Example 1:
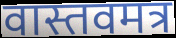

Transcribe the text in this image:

वास्तवमत्र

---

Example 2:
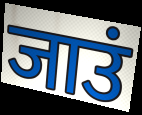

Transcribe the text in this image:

जाउं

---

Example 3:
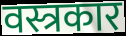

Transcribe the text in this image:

वस्त्रकार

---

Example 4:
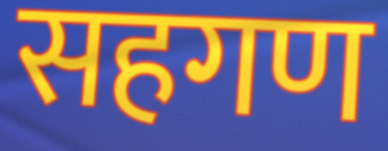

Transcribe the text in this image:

सहगण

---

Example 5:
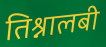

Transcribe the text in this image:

तिश्नालबी